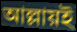
আল্লায়ই